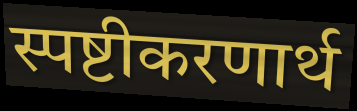
स्पष्टीकरणार्थ